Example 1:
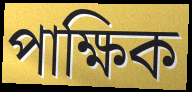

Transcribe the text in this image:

পাক্ষিক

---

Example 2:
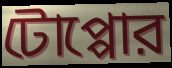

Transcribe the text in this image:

টোপ্পোর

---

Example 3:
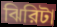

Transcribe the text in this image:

ঝিরিটা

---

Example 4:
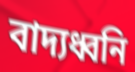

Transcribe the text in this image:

বাদ্যধ্বনি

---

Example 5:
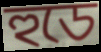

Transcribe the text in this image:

হুডে